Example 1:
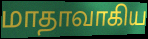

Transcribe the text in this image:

மாதாவாகிய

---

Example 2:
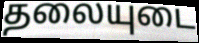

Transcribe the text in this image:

தலையுடை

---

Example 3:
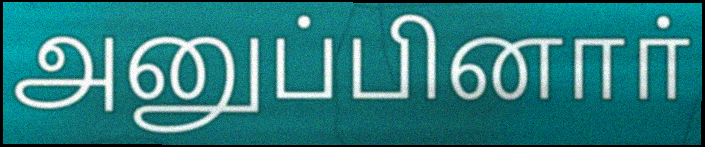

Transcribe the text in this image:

அனுப்பினார்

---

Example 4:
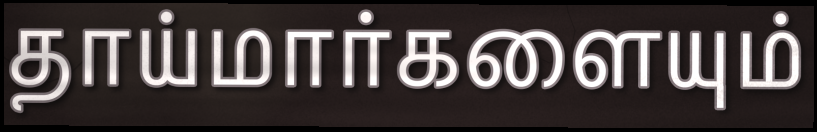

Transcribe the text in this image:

தாய்மார்களையும்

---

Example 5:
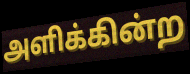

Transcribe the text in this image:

அளிக்கின்ற